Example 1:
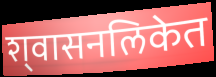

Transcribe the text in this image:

श्वासनलिकेत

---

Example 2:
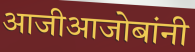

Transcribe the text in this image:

आजीआजोबांनी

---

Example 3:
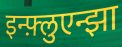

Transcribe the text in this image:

इन्फ़्लुएन्झा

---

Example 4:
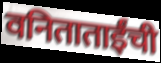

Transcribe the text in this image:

वनिताताईंची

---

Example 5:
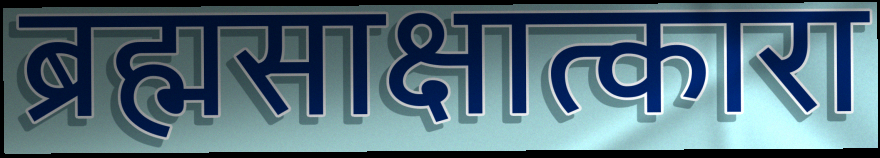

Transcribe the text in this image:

ब्रह्मसाक्षात्कारा